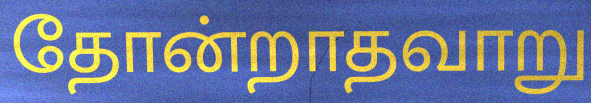
தோன்றாதவாறு